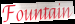
Fountain